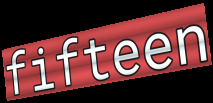
fifteen